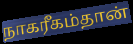
நாகரீகம்தான்